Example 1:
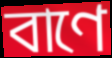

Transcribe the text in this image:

বাণে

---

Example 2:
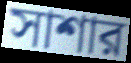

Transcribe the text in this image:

সাশার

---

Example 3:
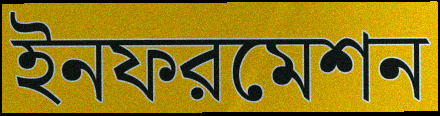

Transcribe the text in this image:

ইনফরমেশন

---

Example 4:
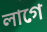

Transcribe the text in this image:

লাগে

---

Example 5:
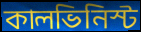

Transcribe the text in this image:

কালভিনিস্ট